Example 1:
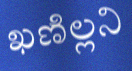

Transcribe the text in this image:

ఖణిల్లని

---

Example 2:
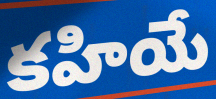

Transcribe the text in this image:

కహియే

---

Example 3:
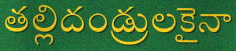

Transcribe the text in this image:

తల్లిదండ్రులకైనా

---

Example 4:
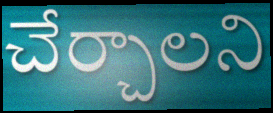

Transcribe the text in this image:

చేర్చాలని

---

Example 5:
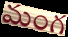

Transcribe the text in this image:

మంగ